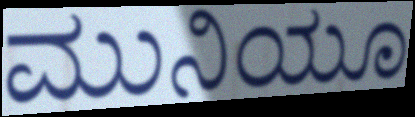
ಮುನಿಯೂ